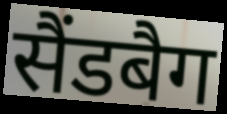
सैंडबैग